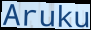
Aruku